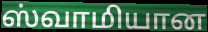
ஸ்வாமியான